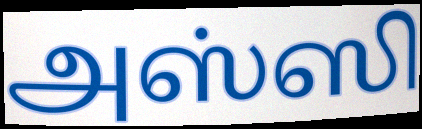
அஸ்ஸி